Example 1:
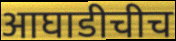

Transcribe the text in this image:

आघाडीचीच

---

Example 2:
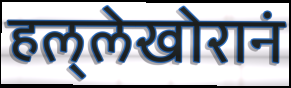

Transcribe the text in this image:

हल्लेखोरानं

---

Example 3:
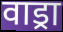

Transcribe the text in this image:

वाड्रा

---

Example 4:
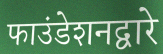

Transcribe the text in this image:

फाउंडेशनद्वारे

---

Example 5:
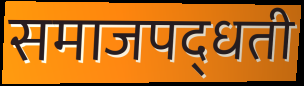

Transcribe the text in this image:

समाजपद्धती